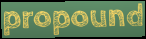
propound